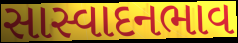
સાસ્વાદનભાવ